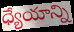
ధ్యేయాన్ని